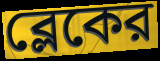
ব্লেকের